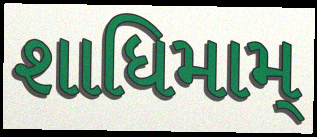
શાધિમામ્